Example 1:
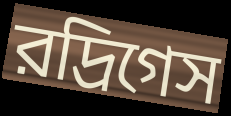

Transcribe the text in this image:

রদ্রিগেস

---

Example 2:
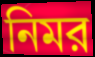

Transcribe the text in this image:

নিমর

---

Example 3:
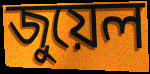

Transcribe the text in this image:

জুয়েল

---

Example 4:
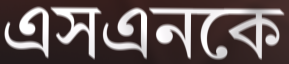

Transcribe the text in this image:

এসএনকে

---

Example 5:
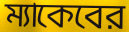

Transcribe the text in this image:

ম্যাকেবের